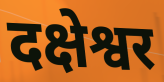
दक्षेश्वर